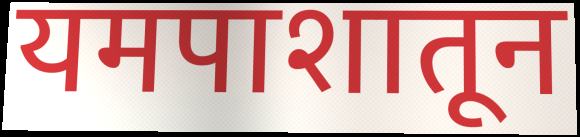
यमपाशातून